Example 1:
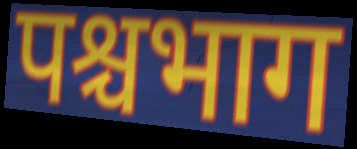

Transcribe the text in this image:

पश्चभाग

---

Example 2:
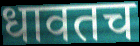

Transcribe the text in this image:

धावतच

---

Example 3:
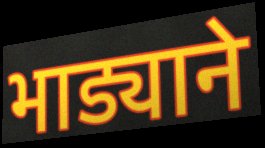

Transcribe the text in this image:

भाड्याने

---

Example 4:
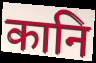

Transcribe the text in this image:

कानि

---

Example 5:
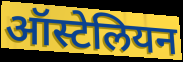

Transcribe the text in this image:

ऑस्टेलियन